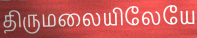
திருமலையிலேயே